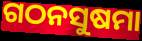
ଗଠନସୁଷମା